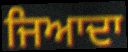
ਜਿਆਦਾ